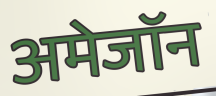
अमेजॉन